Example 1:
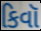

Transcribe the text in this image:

કિવૉ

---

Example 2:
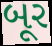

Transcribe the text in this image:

બૂર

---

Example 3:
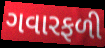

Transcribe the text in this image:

ગવારફળી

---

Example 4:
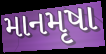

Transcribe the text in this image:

માનમૃષા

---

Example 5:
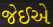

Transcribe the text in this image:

જેઈએ